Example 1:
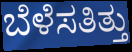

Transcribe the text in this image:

ಬೆಳೆಸತಿತ್ತು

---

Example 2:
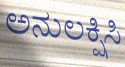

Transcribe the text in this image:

ಅನುಲಕ್ಷಿಸಿ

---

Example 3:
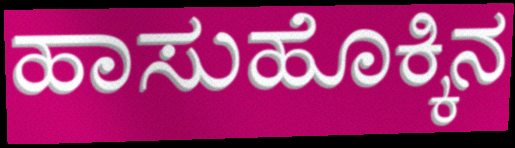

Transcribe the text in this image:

ಹಾಸುಹೊಕ್ಕಿನ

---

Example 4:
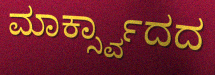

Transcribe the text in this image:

ಮಾರ್ಕ್ಸ್ವಾದದ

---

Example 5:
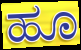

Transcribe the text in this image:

ಹೂ